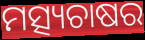
ମତ୍ସ୍ୟଚାଷର